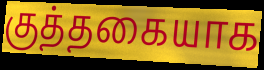
குத்தகையாக